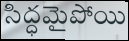
సిద్ధమైపోయి